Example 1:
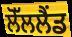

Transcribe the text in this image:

ਲੋੱਲਲੈਂਡ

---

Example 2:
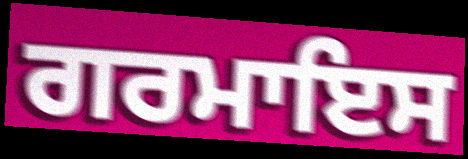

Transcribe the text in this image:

ਗਰਮਾਇਸ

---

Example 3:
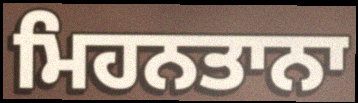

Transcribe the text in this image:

ਮਿਹਨਤਾਨਾ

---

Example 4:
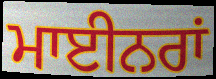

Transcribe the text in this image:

ਮਾਈਨਰਾਂ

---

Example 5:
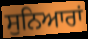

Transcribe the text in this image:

ਸੁਨਿਆਰਾਂ